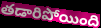
తడారిపోయింది